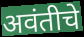
अवंतीचे